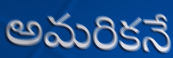
అమరికనే